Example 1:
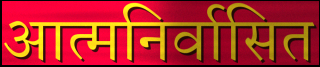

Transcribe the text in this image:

आत्मनिर्वासित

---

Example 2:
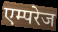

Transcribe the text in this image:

एम्परेज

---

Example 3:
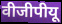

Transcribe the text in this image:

वीजीपीयू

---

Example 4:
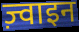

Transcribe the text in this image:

ज़्वाइन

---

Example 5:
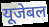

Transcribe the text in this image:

यूजेबल